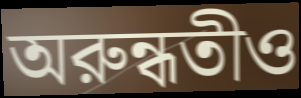
অরুন্ধতীও